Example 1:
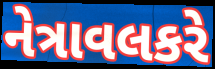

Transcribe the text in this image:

નેત્રાવલકરે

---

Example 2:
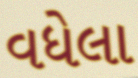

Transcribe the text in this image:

વધેલા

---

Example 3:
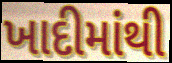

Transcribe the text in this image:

ખાદીમાંથી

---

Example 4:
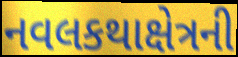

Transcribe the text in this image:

નવલકથાક્ષેત્રની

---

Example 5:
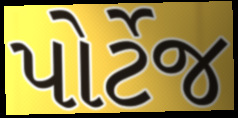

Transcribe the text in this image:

પોર્ટેજ